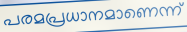
പരമപ്രധാനമാണെന്ന്